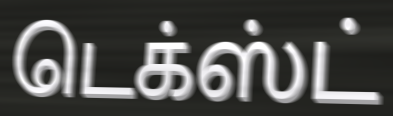
டெக்ஸ்ட்